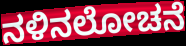
ನಳಿನಲೋಚನೆ